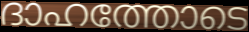
ദാഹത്തോടെ